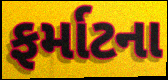
ફર્માટના